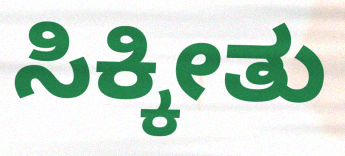
ಸಿಕ್ಕೀತು